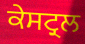
ਕੇਸਟ੍ਰਲ